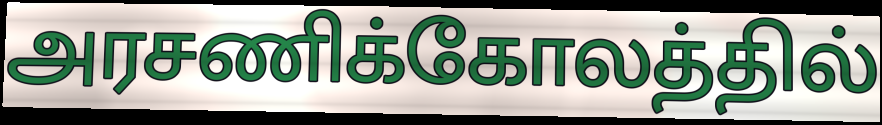
அரசணிக்கோலத்தில்